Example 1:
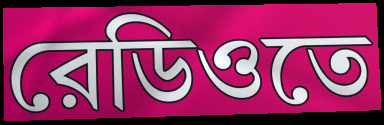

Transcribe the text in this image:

রেডিওতে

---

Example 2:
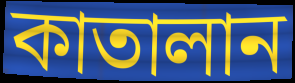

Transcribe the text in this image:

কাতালান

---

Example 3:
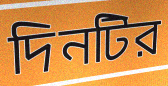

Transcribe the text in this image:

দিনটির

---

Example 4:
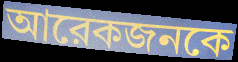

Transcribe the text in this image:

আরেকজনকে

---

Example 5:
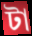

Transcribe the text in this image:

টা